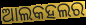
ଆଲକହଲର